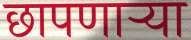
छापणाऱ्या